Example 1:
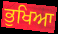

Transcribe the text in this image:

ਭੁਖਿਆ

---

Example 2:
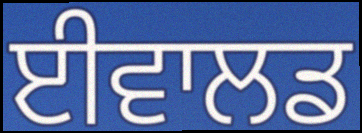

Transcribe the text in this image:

ਈਵਾਲਡ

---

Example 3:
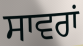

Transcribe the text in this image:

ਸਾਵਰਾਂ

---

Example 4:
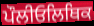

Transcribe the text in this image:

ਪੌਲੀਓਲਿਥਿਕ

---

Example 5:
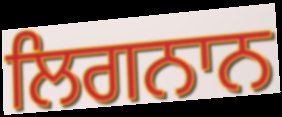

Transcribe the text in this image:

ਲਿਗਨਾਨ